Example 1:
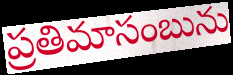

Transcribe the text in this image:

ప్రతిమాసంబును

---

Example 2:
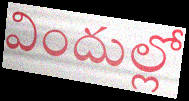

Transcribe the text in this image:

విందుల్లో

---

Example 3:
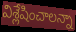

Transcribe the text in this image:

విశ్లేషించాలన్నా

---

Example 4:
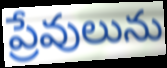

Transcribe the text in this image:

ప్రేవులును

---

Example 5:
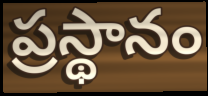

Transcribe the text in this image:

ప్రస్థానం